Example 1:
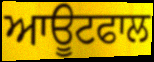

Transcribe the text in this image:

ਆਊਟਫਾਲ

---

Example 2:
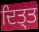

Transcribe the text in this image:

ਦਿਤ੍ਤ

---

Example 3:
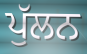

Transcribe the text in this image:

ਪੁੱਲਨ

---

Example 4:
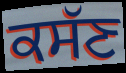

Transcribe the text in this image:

ਕਸੱਣ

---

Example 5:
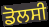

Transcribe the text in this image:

ਡੋਲਸੀ